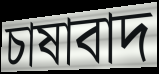
চাষাবাদ